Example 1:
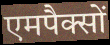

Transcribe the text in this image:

एमपैक्सों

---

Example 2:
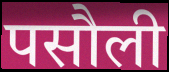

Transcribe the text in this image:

पसौली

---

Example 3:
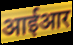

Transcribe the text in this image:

आईआर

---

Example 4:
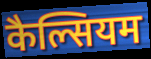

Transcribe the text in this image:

कैल्सियम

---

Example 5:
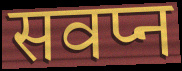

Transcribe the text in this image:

सवप्न